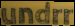
undrr